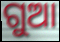
ଗୁଆ